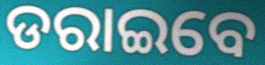
ଡରାଇବେ